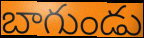
బాగుండు